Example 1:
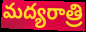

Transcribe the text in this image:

మద్యరాత్రి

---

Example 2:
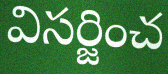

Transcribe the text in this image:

విసర్జించ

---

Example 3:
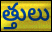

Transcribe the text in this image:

త్తులు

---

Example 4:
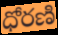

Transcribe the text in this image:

ధోరణి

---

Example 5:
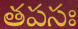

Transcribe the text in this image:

తపసః